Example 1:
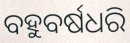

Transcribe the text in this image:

ବହୁବର୍ଷଧରି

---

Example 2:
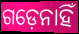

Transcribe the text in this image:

ଗଡ଼େନାହିଁ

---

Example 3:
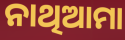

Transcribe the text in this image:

ନାଥିଆମା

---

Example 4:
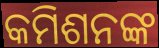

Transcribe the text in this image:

କମିଶନଙ୍କ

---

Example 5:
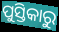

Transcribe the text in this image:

ପୁସ୍ତିକାରୁ